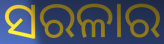
ସରଳାର